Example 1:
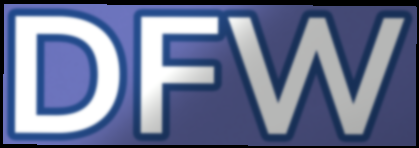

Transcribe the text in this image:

DFW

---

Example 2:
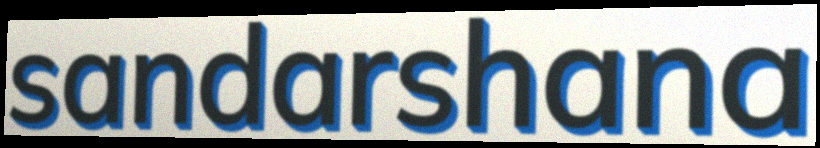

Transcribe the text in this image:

sandarshana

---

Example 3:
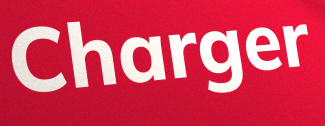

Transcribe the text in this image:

Charger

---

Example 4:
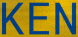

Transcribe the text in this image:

KEN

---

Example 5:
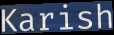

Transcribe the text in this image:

Karish